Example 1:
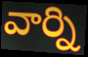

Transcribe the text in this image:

వార్ని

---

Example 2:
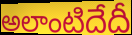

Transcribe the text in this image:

అలాంటిదేదీ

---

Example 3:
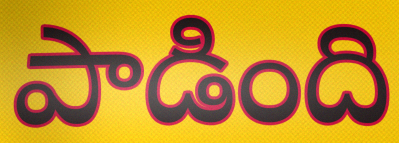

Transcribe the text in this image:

పాడింది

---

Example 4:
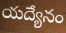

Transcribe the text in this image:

యద్యేనం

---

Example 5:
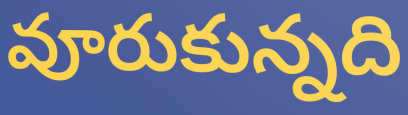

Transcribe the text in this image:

వూరుకున్నది